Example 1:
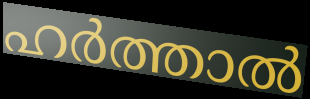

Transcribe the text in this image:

ഹർത്താൽ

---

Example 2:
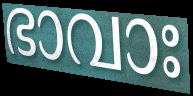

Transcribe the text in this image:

ഭാവാഃ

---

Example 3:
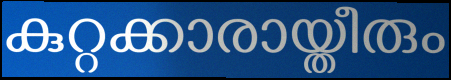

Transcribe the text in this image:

കുറ്റക്കാരായ്തീരും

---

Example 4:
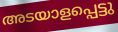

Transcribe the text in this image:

അടയാളപ്പെട്ടു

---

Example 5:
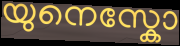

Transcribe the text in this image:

യുനെസ്കോ